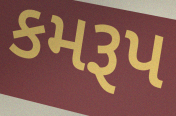
કમરૂપ